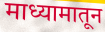
माध्यामातून